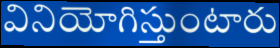
వినియోగిస్తుంటారు